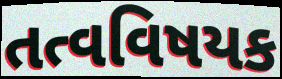
તત્વવિષયક